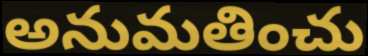
అనుమతించు